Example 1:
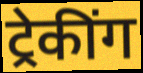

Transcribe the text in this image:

ट्रेकींग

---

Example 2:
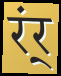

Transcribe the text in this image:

रंर्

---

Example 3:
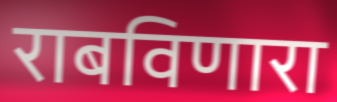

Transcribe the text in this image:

राबविणारा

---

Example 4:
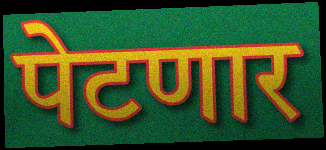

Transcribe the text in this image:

पेटणार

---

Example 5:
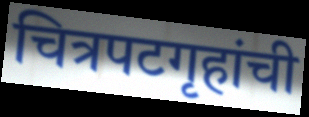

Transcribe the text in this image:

चित्रपटगृहांची